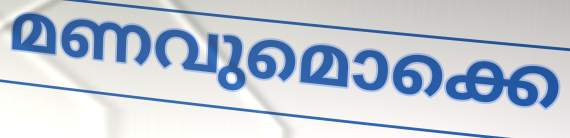
മണവുമൊക്കെ